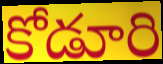
కోడూరి